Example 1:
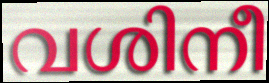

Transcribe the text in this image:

വശിനീ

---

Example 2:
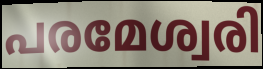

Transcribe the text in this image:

പരമേശ്വരി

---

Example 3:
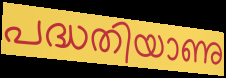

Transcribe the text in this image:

പദ്ധതിയാണു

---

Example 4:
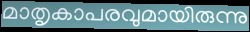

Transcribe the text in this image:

മാതൃകാപരവുമായിരുന്നു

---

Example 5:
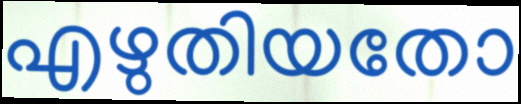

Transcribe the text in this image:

എഴുതിയതോ